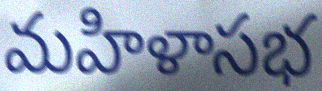
మహిళాసభ